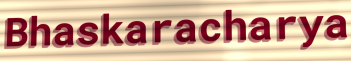
Bhaskaracharya